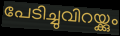
പേടിച്ചുവിറയ്ക്കും